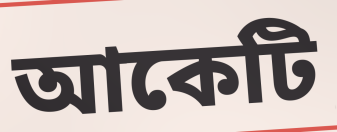
আকেটি